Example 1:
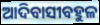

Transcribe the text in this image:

ଆଦିବାସୀବହୁଳ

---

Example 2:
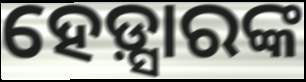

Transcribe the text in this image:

ହେଡ଼୍ସାରଙ୍କ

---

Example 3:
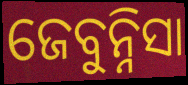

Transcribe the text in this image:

ଜେବୁନ୍ନିସା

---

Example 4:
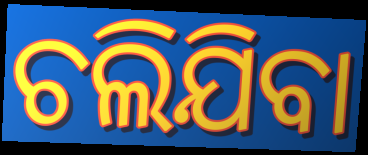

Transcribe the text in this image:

ଚଲିଯିବା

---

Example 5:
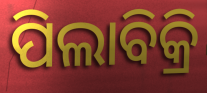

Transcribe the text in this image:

ପିଲାବିକ୍ରି